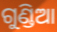
ଗୁଣ୍ଡିଆ